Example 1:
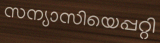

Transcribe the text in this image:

സന്യാസിയെപ്പറ്റി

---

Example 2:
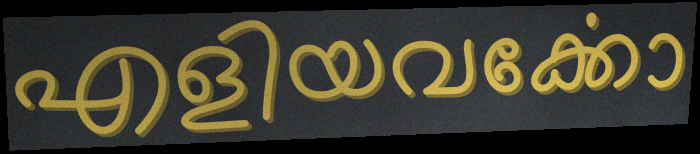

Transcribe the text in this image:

എളിയവൎക്കോ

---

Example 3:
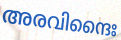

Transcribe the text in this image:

അരവിന്ദൈഃ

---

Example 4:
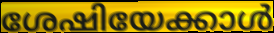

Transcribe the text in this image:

ശേഷിയേക്കാൾ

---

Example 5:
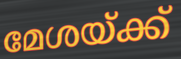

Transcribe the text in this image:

മേശയ്ക്ക്